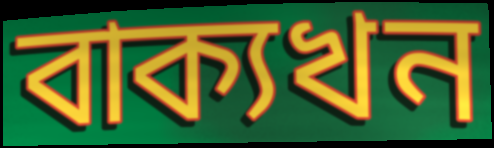
বাক্যখন